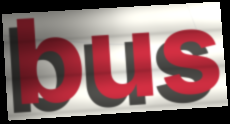
bus